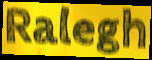
Ralegh